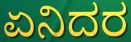
ಏನಿದರ